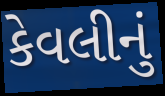
કેવલીનું